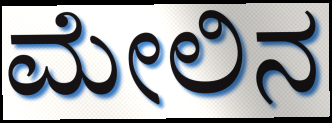
ಮೇಲಿನ